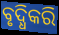
ବୃଦ୍ଧିକରି